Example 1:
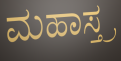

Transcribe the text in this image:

ಮಹಾಸ್ತ್ರ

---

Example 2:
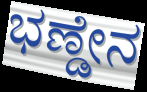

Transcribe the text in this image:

ಭಣ್ಡೇನ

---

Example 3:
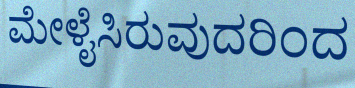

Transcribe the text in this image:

ಮೇಳೈಸಿರುವುದರಿಂದ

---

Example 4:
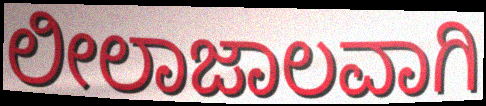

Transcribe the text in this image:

ಲೀಲಾಜಾಲವಾಗಿ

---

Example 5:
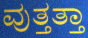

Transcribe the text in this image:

ವುತ್ತತ್ತಾ